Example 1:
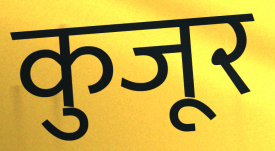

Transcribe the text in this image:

कुजूर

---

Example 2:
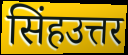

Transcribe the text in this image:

सिंहउत्तर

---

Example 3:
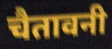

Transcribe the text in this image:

चैतावनी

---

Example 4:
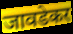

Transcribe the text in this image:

जावडेकर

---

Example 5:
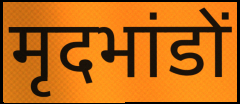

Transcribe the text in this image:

मृदभांडों